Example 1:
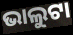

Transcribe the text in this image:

ଭାଲୁଟା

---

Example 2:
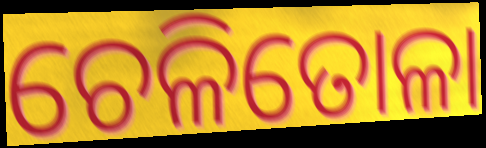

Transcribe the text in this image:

ଚେଳିତୋଳା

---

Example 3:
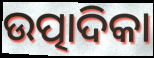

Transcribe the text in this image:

ଉତ୍ପାଦିକା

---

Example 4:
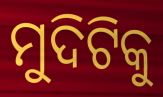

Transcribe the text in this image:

ମୁଦିଟିକୁ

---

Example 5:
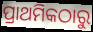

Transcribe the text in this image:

ପ୍ରାଥମିକଠାରୁ